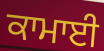
ਕਾਮਾਈ